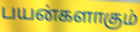
பயன்களாகும்